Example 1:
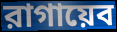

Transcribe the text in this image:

রাগায়েব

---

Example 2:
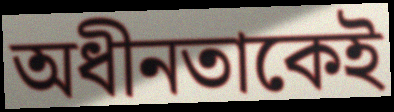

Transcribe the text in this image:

অধীনতাকেই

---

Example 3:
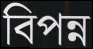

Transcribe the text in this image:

বিপন্ন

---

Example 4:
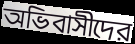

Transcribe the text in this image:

অভিবাসীদের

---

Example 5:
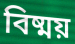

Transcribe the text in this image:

বিষ্ময়